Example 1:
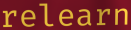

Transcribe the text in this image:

relearn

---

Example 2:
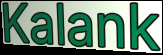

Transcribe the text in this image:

Kalank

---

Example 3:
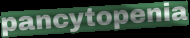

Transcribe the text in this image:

pancytopenia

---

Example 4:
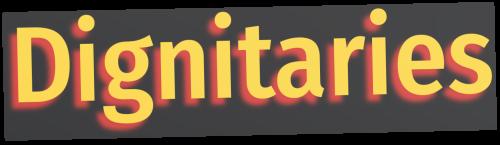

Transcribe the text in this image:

Dignitaries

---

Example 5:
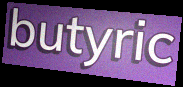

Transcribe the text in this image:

butyric